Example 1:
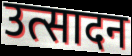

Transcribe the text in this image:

उत्सादन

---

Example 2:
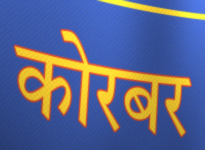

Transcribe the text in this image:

कोरबर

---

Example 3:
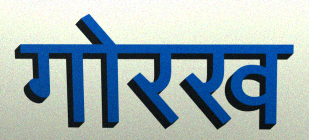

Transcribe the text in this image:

गोरख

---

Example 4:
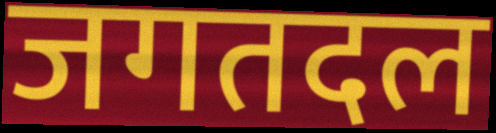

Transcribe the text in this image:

जगतदल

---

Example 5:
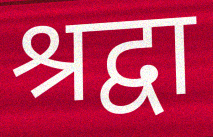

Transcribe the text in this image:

श्रद्वा